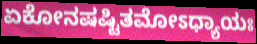
ಏಕೋನಷಷ್ಟಿತಮೋಽಧ್ಯಾಯಃ